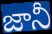
జానీ